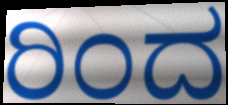
ರಿಂದ